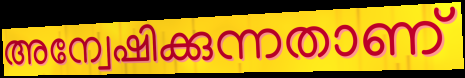
അന്വേഷിക്കുന്നതാണ്